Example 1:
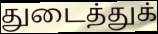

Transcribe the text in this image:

துடைத்துக்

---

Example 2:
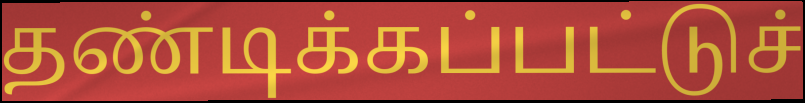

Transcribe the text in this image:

தண்டிக்கப்பட்டுச்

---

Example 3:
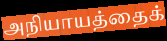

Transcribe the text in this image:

அநியாயத்தைக்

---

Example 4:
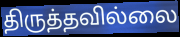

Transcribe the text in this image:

திருத்தவில்லை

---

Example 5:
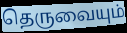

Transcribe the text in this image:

தெருவையும்